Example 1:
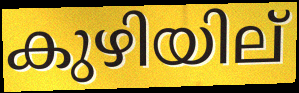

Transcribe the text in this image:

കുഴിയില്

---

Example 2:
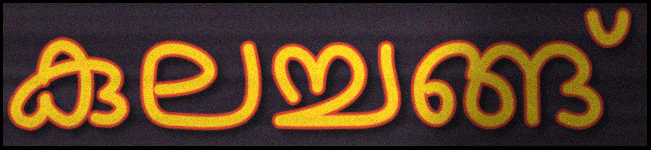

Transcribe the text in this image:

കുലച്ചങ്ങ്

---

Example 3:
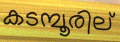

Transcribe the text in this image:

കടമ്പൂരില്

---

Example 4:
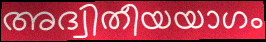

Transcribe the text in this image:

അദ്വിതീയയാഗം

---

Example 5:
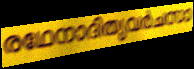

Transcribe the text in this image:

രഥേനാദിത്യവർചസാ